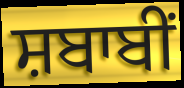
ਸ਼ਬਾਬੀਂ